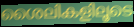
ശൈലികളിലൂടെ